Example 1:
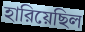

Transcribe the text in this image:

হারিয়েছিল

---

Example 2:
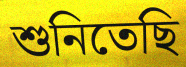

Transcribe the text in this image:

শুনিতেছি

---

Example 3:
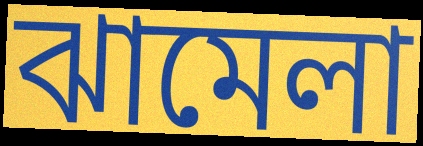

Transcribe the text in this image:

ঝামেলা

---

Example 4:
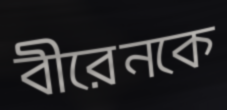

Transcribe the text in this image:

বীরেনকে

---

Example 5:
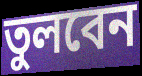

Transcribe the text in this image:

তুলবেন